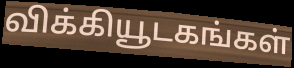
விக்கியூடகங்கள்